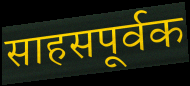
साहसपूर्वक